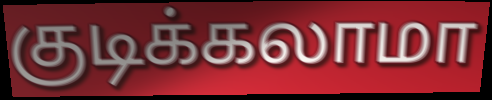
குடிக்கலாமா